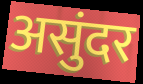
असुंदर